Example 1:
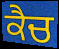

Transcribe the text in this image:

ਕੈਚ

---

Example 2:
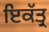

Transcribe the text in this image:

ਇਕੱਤ੍ਰ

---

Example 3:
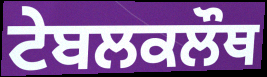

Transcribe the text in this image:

ਟੇਬਲਕਲੌਥ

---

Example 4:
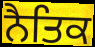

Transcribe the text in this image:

ਨੈਤਿਕ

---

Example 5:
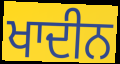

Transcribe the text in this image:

ਖਾਦੀਨ